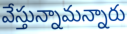
వేస్తున్నామన్నారు